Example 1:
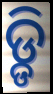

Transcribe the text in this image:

ଡ଼୍ଡି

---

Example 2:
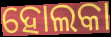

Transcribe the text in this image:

ହୋଲକା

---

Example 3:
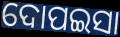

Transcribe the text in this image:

ଦୋପଇସା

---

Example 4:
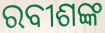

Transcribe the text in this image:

ରବୀଶଙ୍କ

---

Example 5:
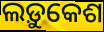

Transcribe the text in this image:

ଲଡ଼ୁକେଶ